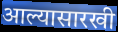
आल्यासारखी